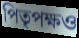
পিতৃপক্ষও